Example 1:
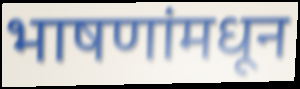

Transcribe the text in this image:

भाषणांमधून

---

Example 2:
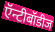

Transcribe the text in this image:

ऍन्टीबॉडीज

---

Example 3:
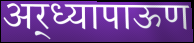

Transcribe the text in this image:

अर्ध्यापाऊण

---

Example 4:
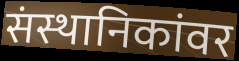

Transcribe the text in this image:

संस्थानिकांवर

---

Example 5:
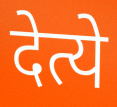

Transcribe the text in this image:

देत्ये